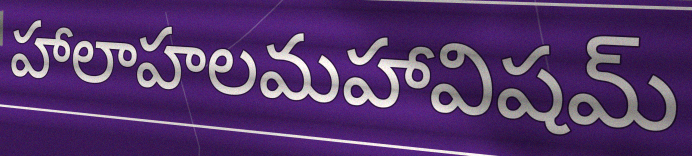
హాలాహలమహావిషమ్